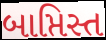
બાપ્તિસ્ત